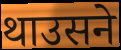
थाउसने